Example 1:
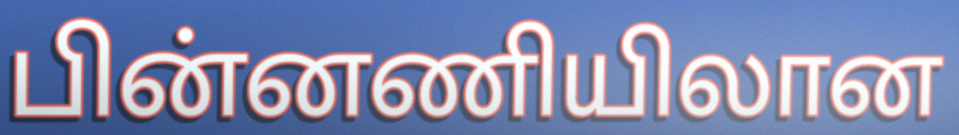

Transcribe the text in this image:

பின்னணியிலான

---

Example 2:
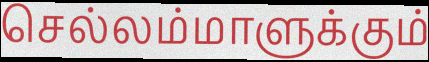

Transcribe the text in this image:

செல்லம்மாளுக்கும்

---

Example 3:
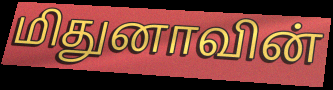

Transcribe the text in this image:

மிதுனாவின்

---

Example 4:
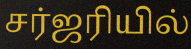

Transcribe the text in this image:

சர்ஜரியில்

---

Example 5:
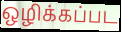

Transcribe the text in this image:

ஒழிக்கப்பட